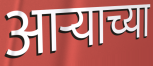
आऱ्याच्या